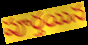
పూర్తయిన